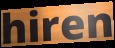
hiren